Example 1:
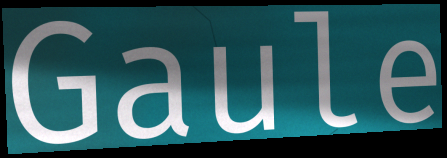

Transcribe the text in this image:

Gaule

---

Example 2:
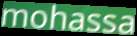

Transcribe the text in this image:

mohassa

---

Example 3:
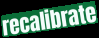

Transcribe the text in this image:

recalibrate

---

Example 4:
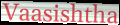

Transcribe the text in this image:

Vaasishtha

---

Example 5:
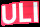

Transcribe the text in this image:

ULI